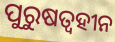
ପୁରୁଷତ୍ୱହୀନ